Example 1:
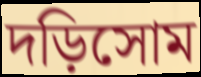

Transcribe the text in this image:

দড়িসোম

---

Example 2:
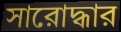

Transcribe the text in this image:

সারোদ্ধার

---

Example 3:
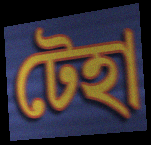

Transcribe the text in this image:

টেহা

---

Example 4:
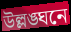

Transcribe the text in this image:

উল্লঙ্ঘনে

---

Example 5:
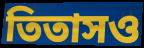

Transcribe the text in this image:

তিতাসও